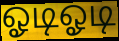
ஓடிஓடி